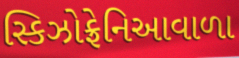
સ્કિઝોફ્રેનિઆવાળા